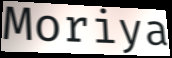
Moriya